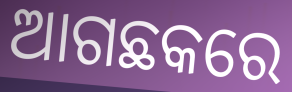
ଆଗଛକରେ